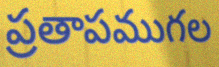
ప్రతాపముగల